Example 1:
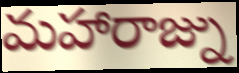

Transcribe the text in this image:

మహారాజ్ను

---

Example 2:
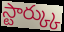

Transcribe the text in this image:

స్టార్క్కు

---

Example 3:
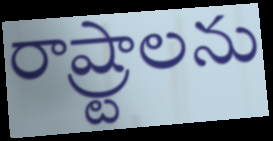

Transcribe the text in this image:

రాష్ర్టాలను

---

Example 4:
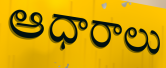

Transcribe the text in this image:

ఆధారాలు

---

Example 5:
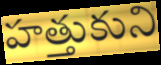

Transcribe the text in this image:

హత్తుకుని